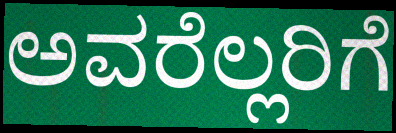
ಅವರೆಲ್ಲರಿಗೆ